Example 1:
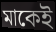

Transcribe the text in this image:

মাকেই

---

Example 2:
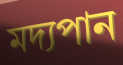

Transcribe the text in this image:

মদ্যপান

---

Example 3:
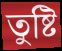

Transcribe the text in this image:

তুষ্টি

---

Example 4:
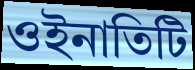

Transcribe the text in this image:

ওইনাতিটি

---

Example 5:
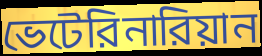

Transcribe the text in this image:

ভেটেরিনারিয়ান